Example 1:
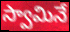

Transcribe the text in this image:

స్వామినే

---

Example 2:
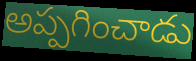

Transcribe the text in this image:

అప్పగించాడు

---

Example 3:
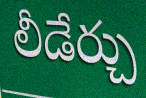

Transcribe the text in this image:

లీడేర్చు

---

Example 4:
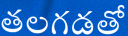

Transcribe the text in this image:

తలగడతో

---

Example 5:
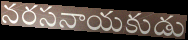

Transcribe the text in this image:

నరసనాయకుడు